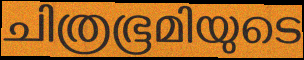
ചിത്രഭൂമിയുടെ